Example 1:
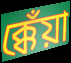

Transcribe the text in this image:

ক্কেঁয়া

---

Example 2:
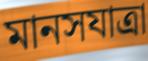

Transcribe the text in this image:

মানসযাত্রা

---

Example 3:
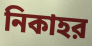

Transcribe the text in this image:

নিকাহর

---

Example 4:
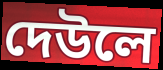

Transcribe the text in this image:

দেউলে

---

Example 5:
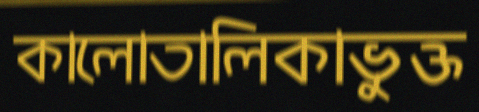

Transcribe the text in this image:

কালোতালিকাভুক্ত